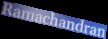
Ramachandran